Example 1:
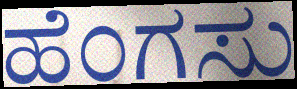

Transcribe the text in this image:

ಹೆಂಗಸು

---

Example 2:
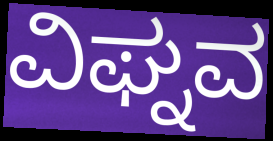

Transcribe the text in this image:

ವಿಘ್ನವ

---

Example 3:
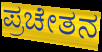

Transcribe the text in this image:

ಪ್ರಚೇತನ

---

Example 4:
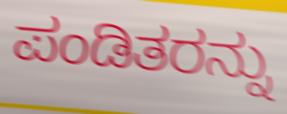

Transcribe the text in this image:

ಪಂಡಿತರನ್ನು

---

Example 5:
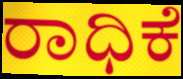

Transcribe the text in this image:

ರಾಧಿಕೆ